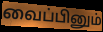
வைப்பினும்